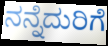
ನನ್ನೆದುರಿಗೆ